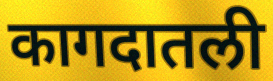
कागदातली